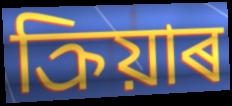
ক্ৰিয়াৰ